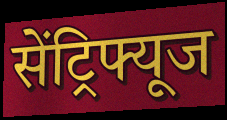
सेंट्रिफ्यूज